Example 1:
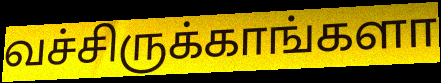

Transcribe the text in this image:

வச்சிருக்காங்களா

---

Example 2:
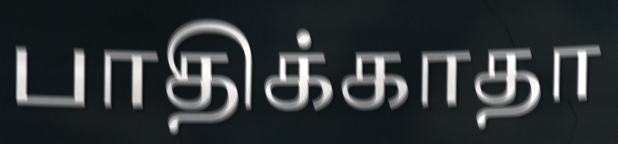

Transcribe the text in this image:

பாதிக்காதா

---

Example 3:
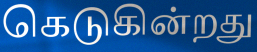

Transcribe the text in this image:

கெடுகின்றது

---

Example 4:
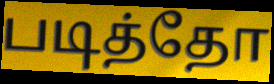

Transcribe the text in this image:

படித்தோ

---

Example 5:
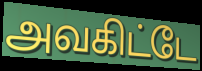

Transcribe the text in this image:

அவகிட்டே